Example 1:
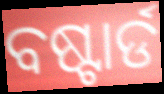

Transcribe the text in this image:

ବଷ୍ଟାର୍ଡ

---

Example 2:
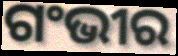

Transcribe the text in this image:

ଗଂଭୀର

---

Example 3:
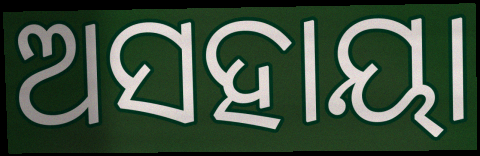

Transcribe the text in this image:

ଅସହାୟା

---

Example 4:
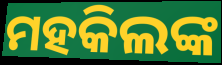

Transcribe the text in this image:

ମହକିଲଙ୍କ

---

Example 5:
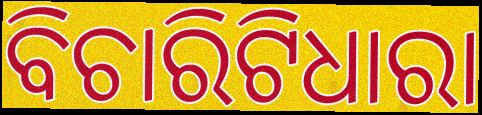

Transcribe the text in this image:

ବିଚାରିଟିଧାରା